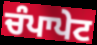
ਚੰਪਾਪੇਟ